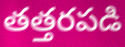
తత్తరపడి